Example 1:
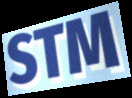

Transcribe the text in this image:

STM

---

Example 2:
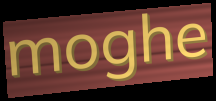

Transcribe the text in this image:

moghe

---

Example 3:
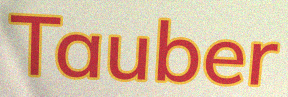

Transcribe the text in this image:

Tauber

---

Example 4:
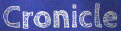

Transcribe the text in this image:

Cronicle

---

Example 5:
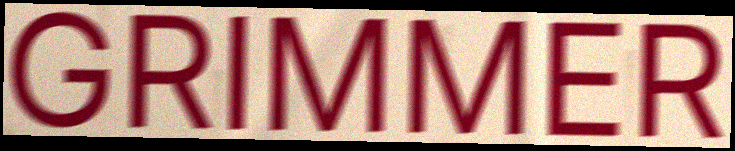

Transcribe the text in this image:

GRIMMER